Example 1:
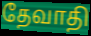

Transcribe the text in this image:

தேவாதி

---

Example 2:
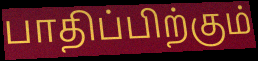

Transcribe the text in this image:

பாதிப்பிற்கும்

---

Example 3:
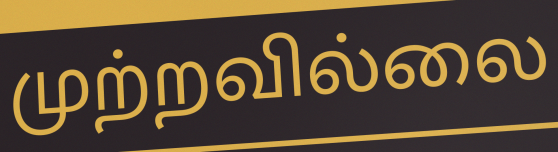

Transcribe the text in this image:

முற்றவில்லை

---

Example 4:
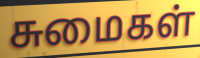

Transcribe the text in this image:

சுமைகள்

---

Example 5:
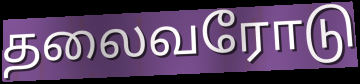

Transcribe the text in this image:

தலைவரோடு